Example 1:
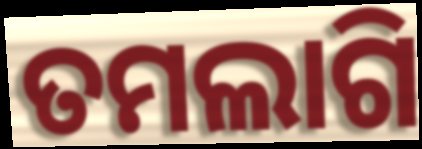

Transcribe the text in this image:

ତମଲାଗି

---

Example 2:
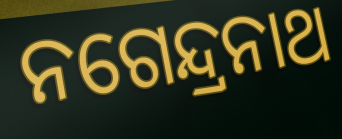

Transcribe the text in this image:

ନଗେନ୍ଦ୍ରନାଥ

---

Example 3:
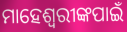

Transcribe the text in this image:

ମାହେଶ୍ୱରୀଙ୍କପାଇଁ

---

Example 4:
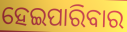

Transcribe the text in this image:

ହେଇପାରିବାର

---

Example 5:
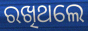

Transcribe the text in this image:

ରଖିଥଲେ